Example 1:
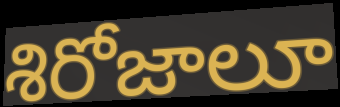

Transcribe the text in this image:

శిరోజాలూ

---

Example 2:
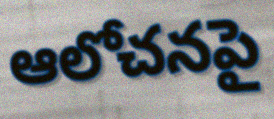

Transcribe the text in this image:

ఆలోచనపై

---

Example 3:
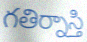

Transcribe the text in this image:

గతిర్నాస్తి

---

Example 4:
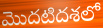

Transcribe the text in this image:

మొదటిదశలో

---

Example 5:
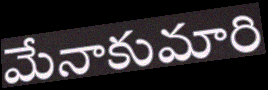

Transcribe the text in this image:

మేనాకుమారి